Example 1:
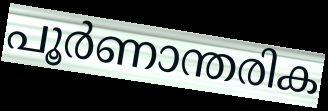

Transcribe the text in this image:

പൂർണാന്തരിക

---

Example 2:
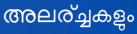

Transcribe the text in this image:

അലര്ച്ചകളും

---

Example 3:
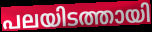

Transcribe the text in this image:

പലയിടത്തായി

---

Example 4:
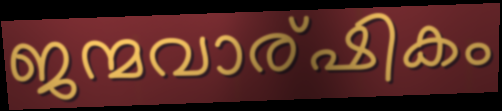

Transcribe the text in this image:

ജന്മവാര്ഷികം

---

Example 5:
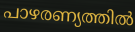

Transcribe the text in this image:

പാഴരണ്യത്തിൽ